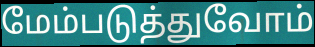
மேம்படுத்துவோம்